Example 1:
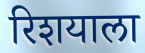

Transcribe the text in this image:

रिशयाला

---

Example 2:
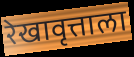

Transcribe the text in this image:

रेखावृत्ताला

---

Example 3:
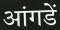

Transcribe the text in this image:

आंगडें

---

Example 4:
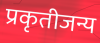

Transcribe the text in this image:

प्रकृतीजन्य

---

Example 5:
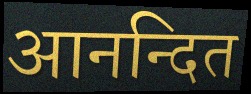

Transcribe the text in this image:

आनन्दित